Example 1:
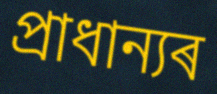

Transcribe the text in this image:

প্ৰাধান্যৰ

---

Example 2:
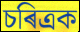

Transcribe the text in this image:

চৰিত্ৰক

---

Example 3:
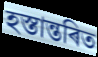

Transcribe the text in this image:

হস্তান্তৰিত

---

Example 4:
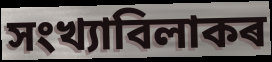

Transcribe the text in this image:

সংখ্যাবিলাকৰ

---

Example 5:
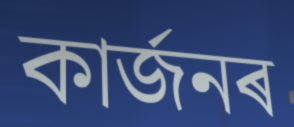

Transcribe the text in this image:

কাৰ্জনৰ